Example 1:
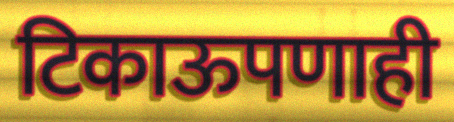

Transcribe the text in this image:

टिकाऊपणाही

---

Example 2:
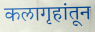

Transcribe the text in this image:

कलागृहांतून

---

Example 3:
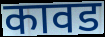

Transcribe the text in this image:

कावड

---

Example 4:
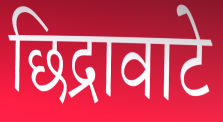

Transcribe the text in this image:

छिद्रावाटे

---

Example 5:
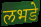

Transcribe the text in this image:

लभडे